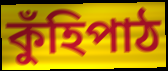
কুঁহিপাঠ